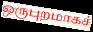
ஒருபுறமாகச்